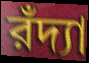
রঁদ্যা